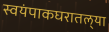
स्वयंपाकघरातल्या